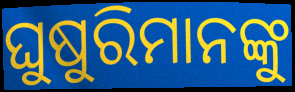
ଘୁଷୁରିମାନଙ୍କୁ